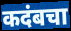
कदंबचा